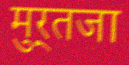
मुर्तजा